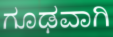
ಗೂಢವಾಗಿ